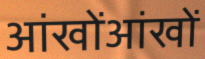
आंखोंआंखों